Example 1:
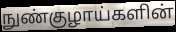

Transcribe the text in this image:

நுண்குழாய்களின்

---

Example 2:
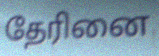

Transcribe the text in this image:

தேரினை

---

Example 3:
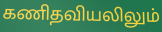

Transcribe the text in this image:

கணிதவியலிலும்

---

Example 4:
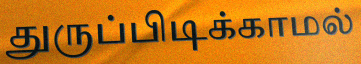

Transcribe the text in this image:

துருப்பிடிக்காமல்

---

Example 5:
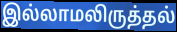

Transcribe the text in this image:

இல்லாமலிருத்தல்